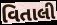
વિતાલી